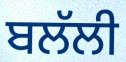
ਬਲੱਲੀ